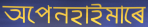
অপেনহাইমাৰে